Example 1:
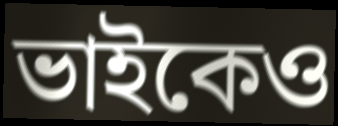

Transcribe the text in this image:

ভাইকেও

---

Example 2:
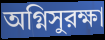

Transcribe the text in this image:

অগ্নিসুরক্ষা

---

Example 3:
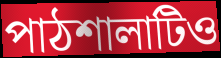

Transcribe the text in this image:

পাঠশালাটিও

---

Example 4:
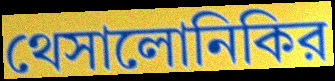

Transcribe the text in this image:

থেসালোনিকির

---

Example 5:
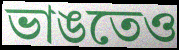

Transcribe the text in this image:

ভাঙতেও